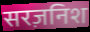
सरज़निश